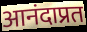
आनंदाप्रत